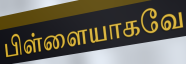
பிள்ளையாகவே